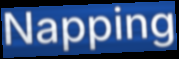
Napping